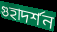
গুহাদর্শন